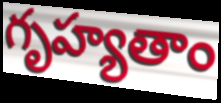
గృహ్యతాం